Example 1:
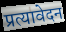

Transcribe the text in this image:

प्रत्यावेदन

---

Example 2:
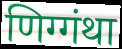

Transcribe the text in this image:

णिग्गंथा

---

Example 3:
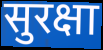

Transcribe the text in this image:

सुरक्षा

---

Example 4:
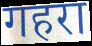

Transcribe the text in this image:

गहरा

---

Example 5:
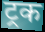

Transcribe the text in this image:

ट्रक